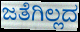
ಜತೆಗಿಲ್ಲದ